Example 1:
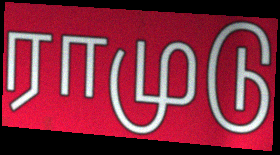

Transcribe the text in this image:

ராமுடு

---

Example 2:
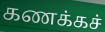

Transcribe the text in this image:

கணக்கச்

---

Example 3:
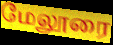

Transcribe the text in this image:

மேலூரை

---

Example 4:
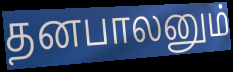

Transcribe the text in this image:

தனபாலனும்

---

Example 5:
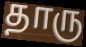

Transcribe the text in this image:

தாரு